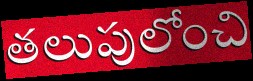
తలుపులోంచి